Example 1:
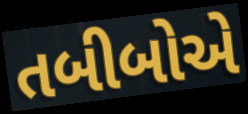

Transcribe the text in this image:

તબીબોએ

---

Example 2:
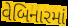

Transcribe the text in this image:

વેબિનારમાં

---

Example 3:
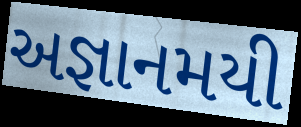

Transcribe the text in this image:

અજ્ઞાનમયી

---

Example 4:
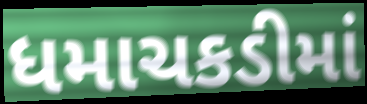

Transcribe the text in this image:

ધમાચકડીમાં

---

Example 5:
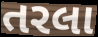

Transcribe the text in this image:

તરલા